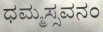
ಧಮ್ಮಸ್ಸವನಂ